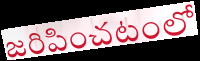
జరిపించటంలో